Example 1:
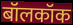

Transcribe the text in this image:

बॉलकॉक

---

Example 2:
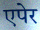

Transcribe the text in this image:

एपेर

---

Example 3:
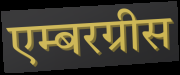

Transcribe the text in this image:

एम्बरग्रीस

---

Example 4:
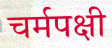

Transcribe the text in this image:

चर्मपक्षी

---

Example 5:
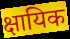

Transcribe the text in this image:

क्षायिक